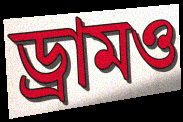
ড্রামও